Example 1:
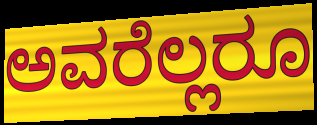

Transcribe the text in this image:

ಅವರೆಲ್ಲರೂ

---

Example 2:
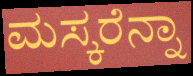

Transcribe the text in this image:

ಮಸ್ಕರೆನ್ನಾ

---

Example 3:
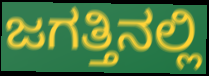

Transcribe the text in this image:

ಜಗತ್ತಿನಲ್ಲಿ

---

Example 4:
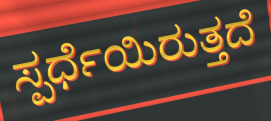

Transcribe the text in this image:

ಸ್ಪರ್ಧೆಯಿರುತ್ತದೆ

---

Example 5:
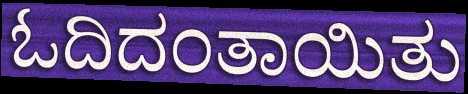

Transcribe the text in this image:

ಓದಿದಂತಾಯಿತು